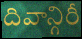
దివాన్గిరీ